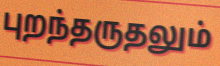
புறந்தருதலும்